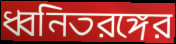
ধ্বনিতরঙ্গের